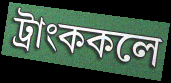
ট্রাংককলে